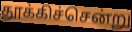
தூக்கிச்சென்று